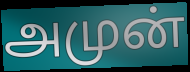
அமுன்